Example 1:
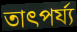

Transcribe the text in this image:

তাৎপৰ্য্য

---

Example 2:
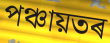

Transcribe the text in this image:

পঞ্চায়তৰ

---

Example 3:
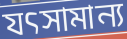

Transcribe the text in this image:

যৎসামান্য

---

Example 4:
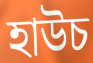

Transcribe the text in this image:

হাউচ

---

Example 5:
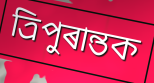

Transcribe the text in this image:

ত্ৰিপুৰান্তক